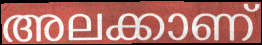
അലക്കാണ്